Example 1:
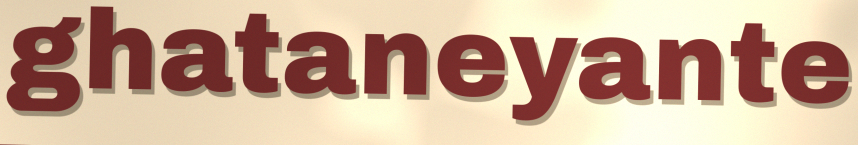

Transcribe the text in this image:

ghataneyante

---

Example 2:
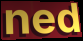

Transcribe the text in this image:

ned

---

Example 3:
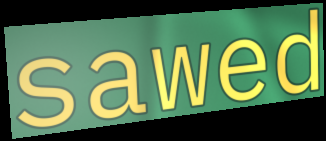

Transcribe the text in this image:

sawed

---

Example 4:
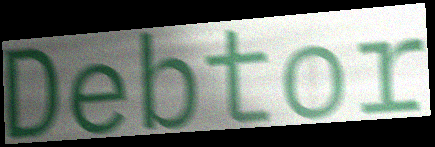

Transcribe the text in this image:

Debtor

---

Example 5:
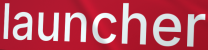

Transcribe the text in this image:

launcher